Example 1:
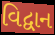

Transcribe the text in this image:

વિદ્વાન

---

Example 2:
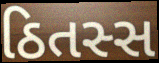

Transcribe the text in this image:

ઠિતસ્સ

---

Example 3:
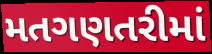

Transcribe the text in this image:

મતગણતરીમાં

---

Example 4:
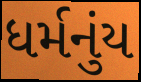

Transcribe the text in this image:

ધર્મનુંય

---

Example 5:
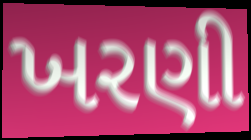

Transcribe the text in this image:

ખરણી